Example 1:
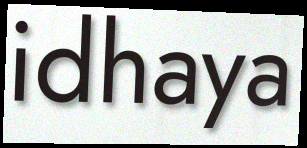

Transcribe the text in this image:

idhaya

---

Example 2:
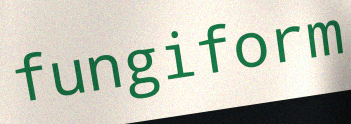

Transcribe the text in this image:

fungiform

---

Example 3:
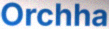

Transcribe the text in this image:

Orchha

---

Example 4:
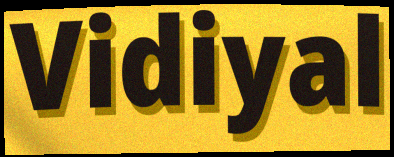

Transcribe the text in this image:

Vidiyal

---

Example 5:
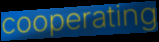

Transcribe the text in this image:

cooperating